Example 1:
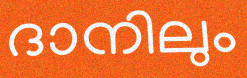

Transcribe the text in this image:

ദാനിലും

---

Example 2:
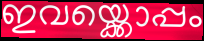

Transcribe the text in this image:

ഇവയ്ക്കൊപ്പം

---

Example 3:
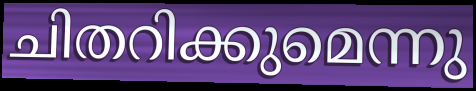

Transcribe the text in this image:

ചിതറിക്കുമെന്നു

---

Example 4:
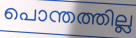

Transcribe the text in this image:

പൊന്തത്തില്ല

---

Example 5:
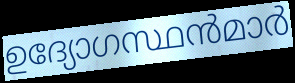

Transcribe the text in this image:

ഉദ്യോഗസ്ഥൻമാർ